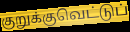
குறுக்குவெட்டுப்